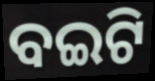
ବଇଟି